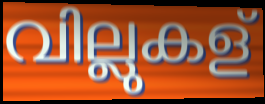
വില്ലുകള്